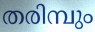
തരിമ്പും